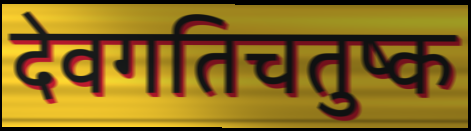
देवगतिचतुष्क